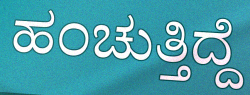
ಹಂಚುತ್ತಿದ್ದೆ